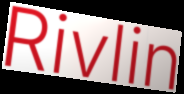
Rivlin